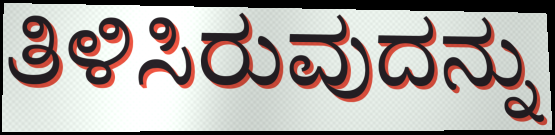
ತಿಳಿಸಿರುವುದನ್ನು